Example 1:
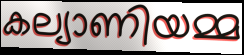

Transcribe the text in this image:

കല്യാണിയമ്മ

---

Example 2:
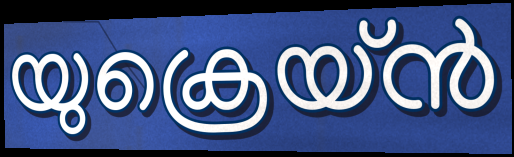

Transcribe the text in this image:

യുക്രെയ്ൻ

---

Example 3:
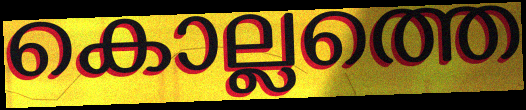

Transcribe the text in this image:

കൊല്ലത്തെ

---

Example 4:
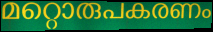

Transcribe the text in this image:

മറ്റൊരുപകരണം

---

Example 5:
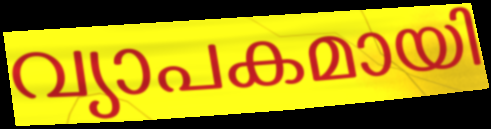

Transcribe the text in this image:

വ്യാപകമായി